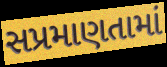
સપ્રમાણતામાં